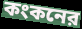
কংকনের